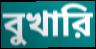
বুখারি